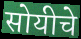
सोयीचे